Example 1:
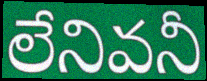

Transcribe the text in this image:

లేనివనీ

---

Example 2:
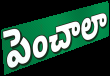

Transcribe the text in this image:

పెంచాలా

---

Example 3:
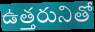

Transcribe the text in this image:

ఉత్తరునితో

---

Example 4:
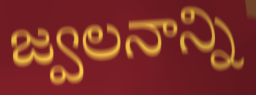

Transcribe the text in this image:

జ్వలనాన్ని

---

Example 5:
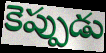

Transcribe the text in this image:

కెప్పుడు